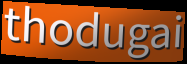
thodugai